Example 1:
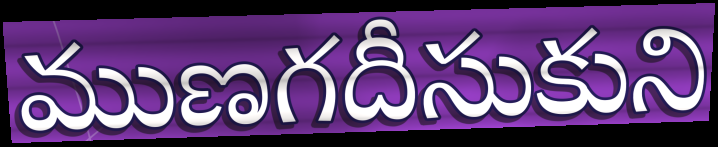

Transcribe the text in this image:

ముణగదీసుకుని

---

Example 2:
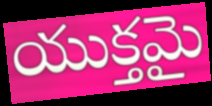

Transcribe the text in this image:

యుక్తమై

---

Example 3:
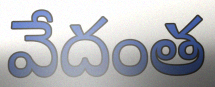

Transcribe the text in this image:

వేదంత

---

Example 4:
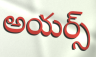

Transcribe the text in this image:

అయర్స్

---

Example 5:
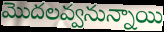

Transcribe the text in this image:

మొదలవ్వనున్నాయి